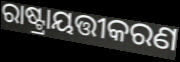
ରାଷ୍ଟ୍ରାୟତ୍ତୀକରଣ